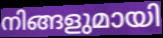
നിങ്ങളുമായി